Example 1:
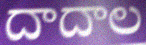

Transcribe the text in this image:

దాదాల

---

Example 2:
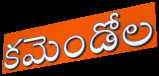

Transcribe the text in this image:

కమెండోల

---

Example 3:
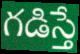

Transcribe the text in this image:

గడిస్తే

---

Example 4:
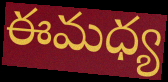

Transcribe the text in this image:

ఈమధ్య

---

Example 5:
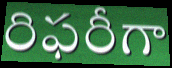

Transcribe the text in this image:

రిఫరీగా